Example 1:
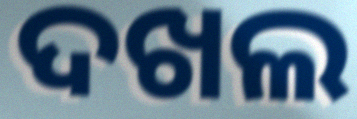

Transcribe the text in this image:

ଦଖଲ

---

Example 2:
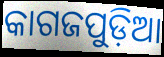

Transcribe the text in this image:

କାଗଜପୁଡ଼ିଆ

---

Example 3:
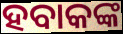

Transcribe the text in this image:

ହବାକଙ୍କ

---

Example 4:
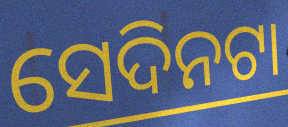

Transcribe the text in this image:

ସେଦିନଟା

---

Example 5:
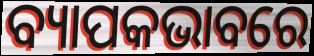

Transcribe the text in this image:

ବ୍ୟାପକଭାବରେ